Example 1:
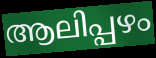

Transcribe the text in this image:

ആലിപ്പഴം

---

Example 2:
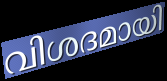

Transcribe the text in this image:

വിശദമായി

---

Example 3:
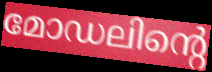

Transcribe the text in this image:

മോഡലിന്റെ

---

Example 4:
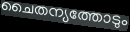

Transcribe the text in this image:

ചൈതന്യത്തോടും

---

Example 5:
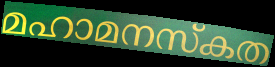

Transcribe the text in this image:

മഹാമനസ്കത